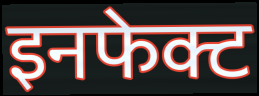
इनफेक्ट